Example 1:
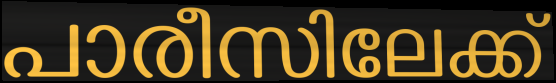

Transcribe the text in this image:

പാരീസിലേക്ക്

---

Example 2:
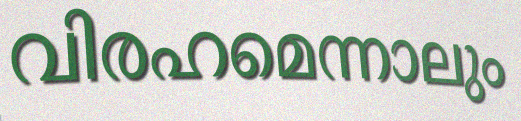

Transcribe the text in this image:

വിരഹമെന്നാലും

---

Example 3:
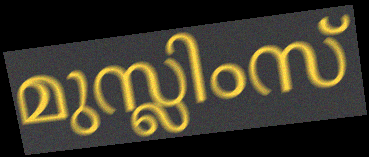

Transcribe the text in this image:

മുസ്ലിംസ്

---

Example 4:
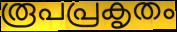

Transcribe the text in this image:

രൂപപ്രകൃതം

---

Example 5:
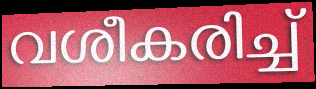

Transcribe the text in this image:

വശീകരിച്ച്